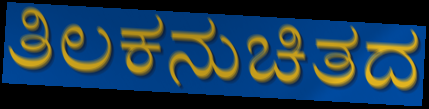
ತಿಲಕನುಚಿತದ